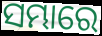
ସମ୍ଭାରେ